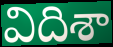
విదిశా